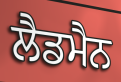
ਲੈਡਮੈਨ